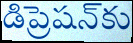
డిప్రెషన్‌కు